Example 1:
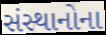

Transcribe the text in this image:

સંસ્થાનોના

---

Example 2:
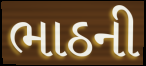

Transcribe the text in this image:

ભાઠની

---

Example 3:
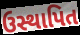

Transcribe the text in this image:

ઉસ્થાપિત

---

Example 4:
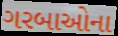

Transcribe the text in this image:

ગરબાઓના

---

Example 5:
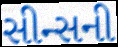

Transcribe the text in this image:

સીન્સની